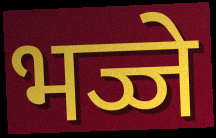
भज्जे